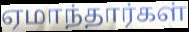
ஏமாந்தார்கள்